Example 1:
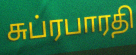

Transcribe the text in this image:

சுப்ரபாரதி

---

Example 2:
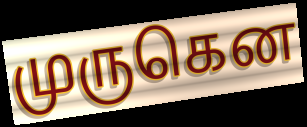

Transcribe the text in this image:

முருகென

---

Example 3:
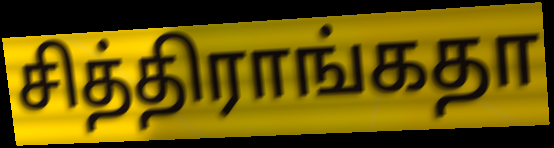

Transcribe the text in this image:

சித்திராங்கதா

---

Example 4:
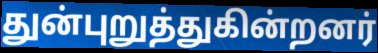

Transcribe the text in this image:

துன்புறுத்துகின்றனர்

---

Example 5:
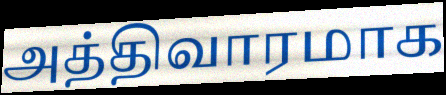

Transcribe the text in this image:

அத்திவாரமாக